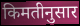
किमतीनुसार